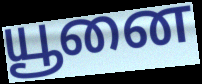
யூனை